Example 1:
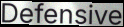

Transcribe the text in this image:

Defensive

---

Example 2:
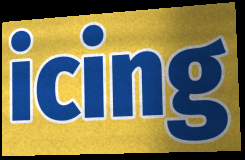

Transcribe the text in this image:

icing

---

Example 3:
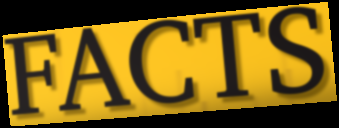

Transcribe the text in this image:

FACTS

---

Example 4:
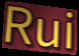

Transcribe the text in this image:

Rui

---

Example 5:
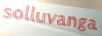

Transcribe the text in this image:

solluvanga